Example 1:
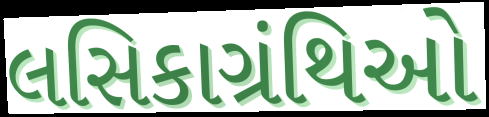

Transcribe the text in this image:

લસિકાગ્રંથિઓ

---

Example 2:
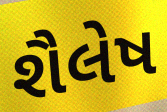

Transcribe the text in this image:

શૈલેષ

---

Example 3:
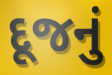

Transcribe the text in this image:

દૂજનું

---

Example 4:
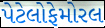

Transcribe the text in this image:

પેટેલોફેમોરલ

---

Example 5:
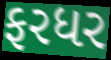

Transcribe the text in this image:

ફરધર